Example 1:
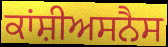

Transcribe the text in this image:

ਕਾਂਸ਼ੀਅਸਨੈਸ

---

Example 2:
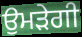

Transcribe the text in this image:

ਉਮੜੇਗੀ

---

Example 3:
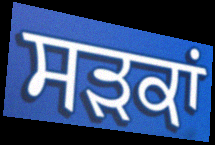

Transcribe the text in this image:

ਸੜਕਾਂ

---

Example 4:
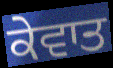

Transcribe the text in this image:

ਕੇਵਾਤ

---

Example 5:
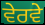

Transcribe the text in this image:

ਵੇਰਵੇ